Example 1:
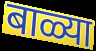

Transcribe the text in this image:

बाळ्या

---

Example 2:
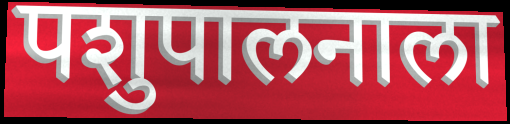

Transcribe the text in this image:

पशुपालनाला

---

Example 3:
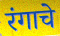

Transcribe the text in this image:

रंगाचे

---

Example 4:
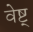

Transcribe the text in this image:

वेष्ट्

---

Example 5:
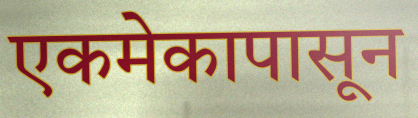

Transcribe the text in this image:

एकमेकापासून